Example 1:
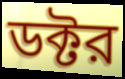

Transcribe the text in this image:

ডক্টর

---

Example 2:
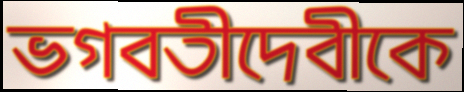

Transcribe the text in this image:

ভগবতীদেবীকে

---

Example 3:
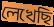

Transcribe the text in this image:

লেখেছি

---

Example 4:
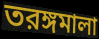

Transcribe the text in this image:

তরঙ্গমালা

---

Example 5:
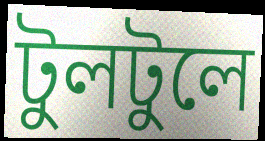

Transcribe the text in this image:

টুলটুলে